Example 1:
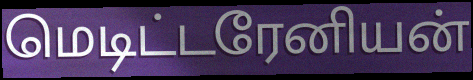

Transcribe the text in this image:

மெடிட்டரேனியன்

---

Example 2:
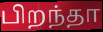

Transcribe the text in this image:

பிறந்தா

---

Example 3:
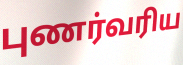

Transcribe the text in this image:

புணர்வரிய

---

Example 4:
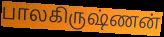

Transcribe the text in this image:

பாலகிருஷ்ணன்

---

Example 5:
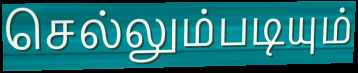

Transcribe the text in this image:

செல்லும்படியும்